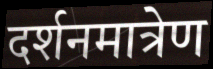
दर्शनमात्रेण